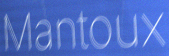
Mantoux